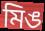
মিঙ